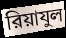
রিয়াযুল